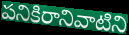
పనికిరానివాటిని